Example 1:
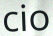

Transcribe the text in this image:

cio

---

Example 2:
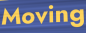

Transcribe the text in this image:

Moving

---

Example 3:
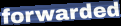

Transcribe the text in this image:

forwarded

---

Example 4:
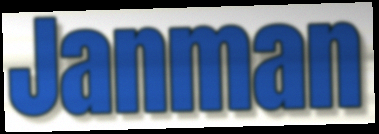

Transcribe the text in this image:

Janman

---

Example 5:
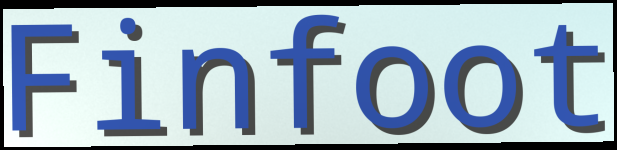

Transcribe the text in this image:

Finfoot